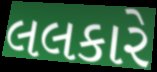
લલકારે